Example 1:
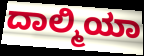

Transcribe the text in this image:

ದಾಲ್ಮಿಯಾ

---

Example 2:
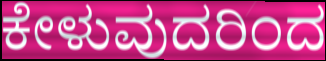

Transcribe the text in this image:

ಕೇಳುವುದರಿಂದ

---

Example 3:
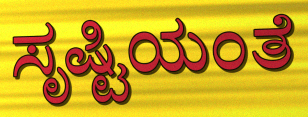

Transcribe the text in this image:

ಸೃಷ್ಟಿಯಂತೆ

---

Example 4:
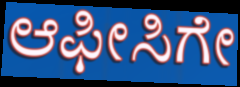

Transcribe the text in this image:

ಆಫೀಸಿಗೇ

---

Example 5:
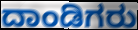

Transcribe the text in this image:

ದಾಂಡಿಗರು